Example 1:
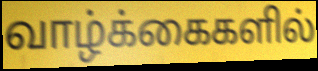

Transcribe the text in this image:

வாழ்க்கைகளில்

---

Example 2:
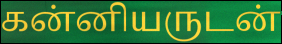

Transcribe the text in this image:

கன்னியருடன்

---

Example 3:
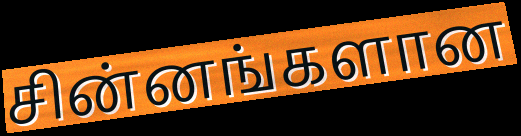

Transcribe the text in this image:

சின்னங்களான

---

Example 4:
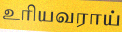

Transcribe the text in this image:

உரியவராய்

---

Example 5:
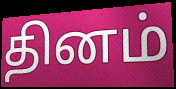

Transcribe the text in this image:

தினம்